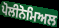
ਪੋਲੀਨੋਮਿਅਲ